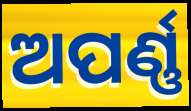
ଅପର୍ଣ୍ଣ